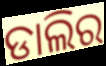
ଡାଲିର